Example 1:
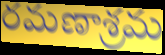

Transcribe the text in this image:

రమణాశ్రమ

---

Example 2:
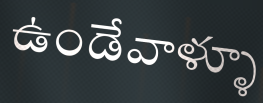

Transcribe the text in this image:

ఉండేవాళ్ళూ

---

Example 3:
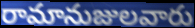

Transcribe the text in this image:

రామానుజులవారు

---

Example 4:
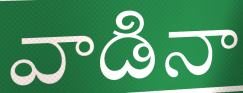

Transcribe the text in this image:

వాడినా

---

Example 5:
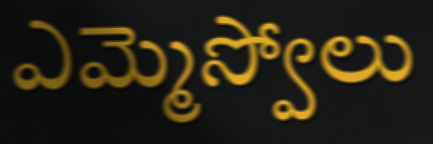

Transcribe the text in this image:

ఎమ్మెస్వోలు